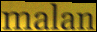
malan